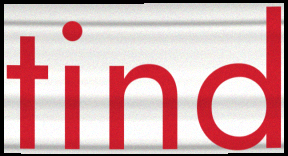
tind